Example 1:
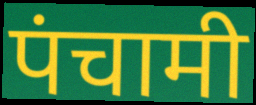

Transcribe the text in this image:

पंचामी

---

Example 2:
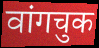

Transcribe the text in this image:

वांगचुक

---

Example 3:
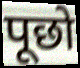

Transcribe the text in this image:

पूछो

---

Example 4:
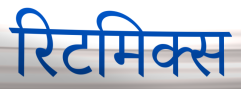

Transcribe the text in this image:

रिटमिक्स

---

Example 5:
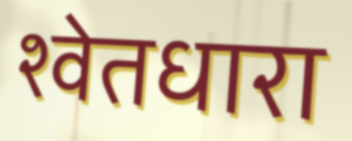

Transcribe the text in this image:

श्वेतधारा